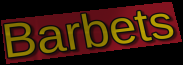
Barbets